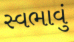
સ્વભાવું